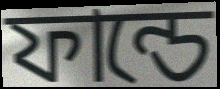
ফান্ডে